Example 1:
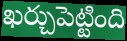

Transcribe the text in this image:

ఖర్చుపెట్టింది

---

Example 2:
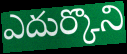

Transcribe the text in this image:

ఎదుర్కొని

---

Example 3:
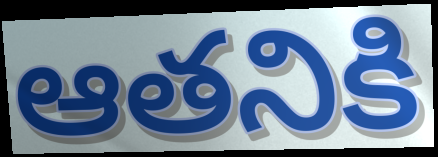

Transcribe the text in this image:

ఆతనికి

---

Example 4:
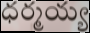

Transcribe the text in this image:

ధర్మయ్య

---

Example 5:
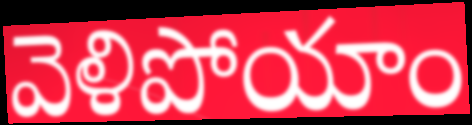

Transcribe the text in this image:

వెళిపోయాం